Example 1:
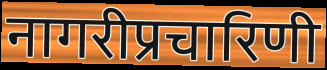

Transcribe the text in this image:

नागरीप्रचारिणी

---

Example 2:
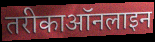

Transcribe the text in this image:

तरीकाऑनलाइन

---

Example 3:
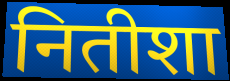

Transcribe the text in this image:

नितीशा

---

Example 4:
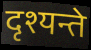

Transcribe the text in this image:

दृश्यन्ते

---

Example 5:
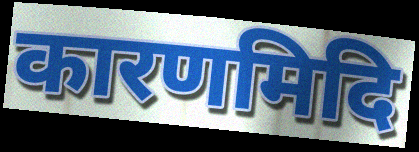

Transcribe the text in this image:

कारणमिदि